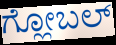
ಗ್ಲೋಬಲ್